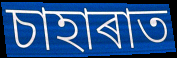
চাহাৰাত